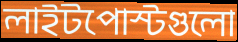
লাইটপোস্টগুলো